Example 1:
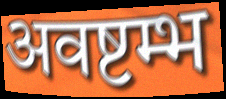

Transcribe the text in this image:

अवष्टम्भ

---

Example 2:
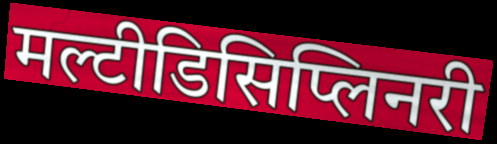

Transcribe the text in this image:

मल्टीडिसिप्लिनरी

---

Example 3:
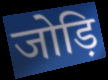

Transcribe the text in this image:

जोड़ि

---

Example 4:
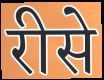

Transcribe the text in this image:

रीसे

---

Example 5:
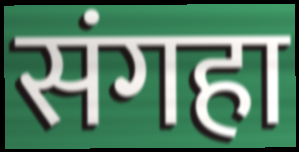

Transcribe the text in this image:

संगहा